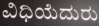
ವಿಧಿಯೆದುರು